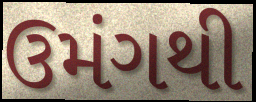
ઉમંગથી